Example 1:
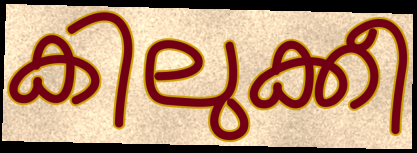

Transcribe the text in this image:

കിലുക്കീ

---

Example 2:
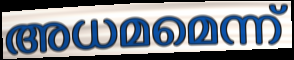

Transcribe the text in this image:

അധമമെന്ന്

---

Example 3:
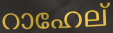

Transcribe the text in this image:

റാഹേല്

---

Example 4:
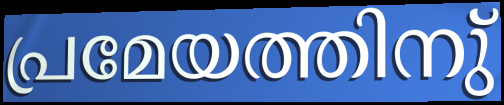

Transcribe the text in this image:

പ്രമേയത്തിനു്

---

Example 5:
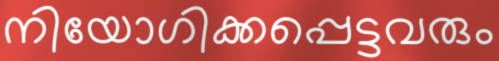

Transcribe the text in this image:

നിയോഗിക്കപ്പെട്ടവരും